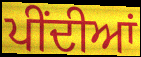
ਪੀਂਦੀਆਂ